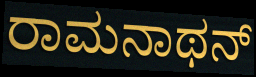
ರಾಮನಾಥನ್